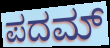
ಪದಮ್